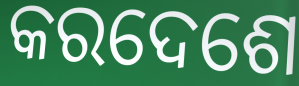
କରଦେଶେ